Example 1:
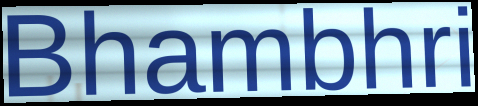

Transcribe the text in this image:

Bhambhri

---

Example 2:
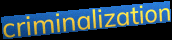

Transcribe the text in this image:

criminalization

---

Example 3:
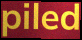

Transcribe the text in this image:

piled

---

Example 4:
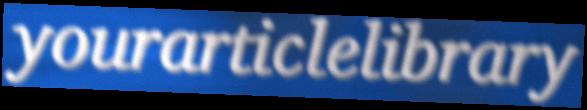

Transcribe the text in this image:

yourarticlelibrary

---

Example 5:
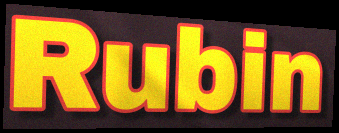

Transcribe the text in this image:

Rubin